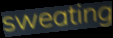
sweating